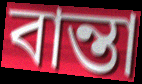
বান্তা